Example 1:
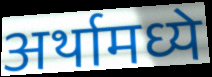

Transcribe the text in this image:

अर्थामध्ये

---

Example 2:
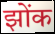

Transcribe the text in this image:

झोंक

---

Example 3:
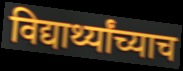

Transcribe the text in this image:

विद्यार्थ्यांच्याच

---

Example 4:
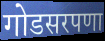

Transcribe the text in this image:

गोडसरपणा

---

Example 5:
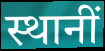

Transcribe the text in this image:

स्थानीं